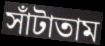
সাঁটাতাম